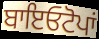
ਬਾਇਓਟੋਪਾਂ